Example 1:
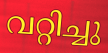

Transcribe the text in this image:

വറ്റിച്ചു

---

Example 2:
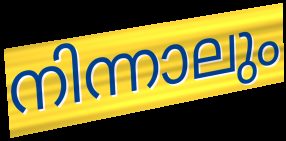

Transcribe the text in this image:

നിന്നാലും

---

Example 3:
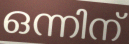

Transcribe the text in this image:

ഒന്നിന്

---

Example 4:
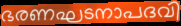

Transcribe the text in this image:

ഭരണഘടനാപദവി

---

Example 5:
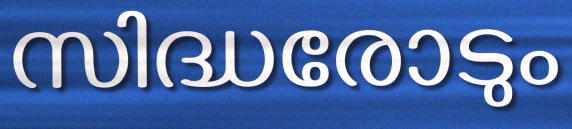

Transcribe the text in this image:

സിദ്ധരോടും